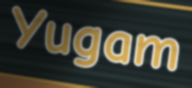
Yugam